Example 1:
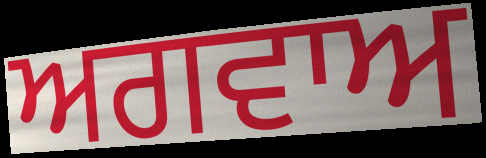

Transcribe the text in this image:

ਅਗਵਾਅ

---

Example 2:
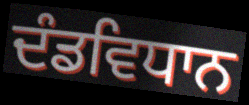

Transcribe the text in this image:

ਦੰਡਵਿਧਾਨ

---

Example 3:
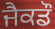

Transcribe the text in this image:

ਜੈਕਡੌ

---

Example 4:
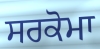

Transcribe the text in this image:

ਸਰਕੋਮਾ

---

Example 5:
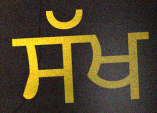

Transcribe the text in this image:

ਸੱਖ